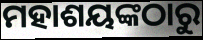
ମହାଶୟଙ୍କଠାରୁ